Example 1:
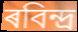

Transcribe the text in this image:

ৰবিন্দ্ৰ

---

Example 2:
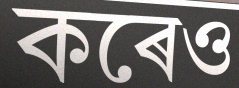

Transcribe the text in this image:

কৰেও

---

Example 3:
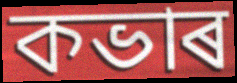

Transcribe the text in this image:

কভাৰ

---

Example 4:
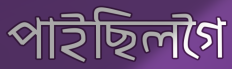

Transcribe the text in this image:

পাইছিলগৈ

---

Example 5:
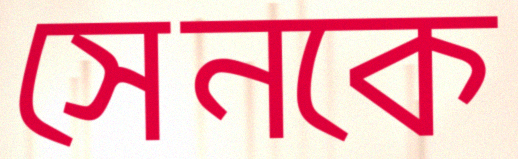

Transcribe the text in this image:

সেনকে